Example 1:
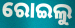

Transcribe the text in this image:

ରୋଇଲୁ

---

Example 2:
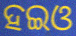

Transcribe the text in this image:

ହଇଓ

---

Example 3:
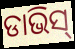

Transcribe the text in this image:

ଡାଭିସ୍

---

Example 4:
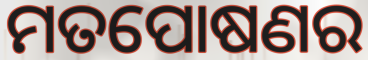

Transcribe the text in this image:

ମତପୋଷଣର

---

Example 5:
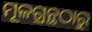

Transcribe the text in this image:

ମୂଳଗ୍ରନ୍ଥଠାରୁ